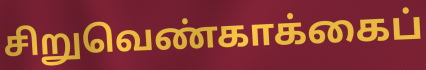
சிறுவெண்காக்கைப்